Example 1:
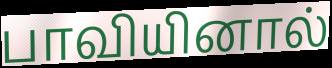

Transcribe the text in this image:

பாவியினால்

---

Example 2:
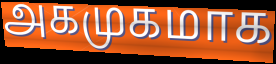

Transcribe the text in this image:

அகமுகமாக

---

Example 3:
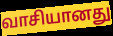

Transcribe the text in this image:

வாசியானது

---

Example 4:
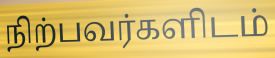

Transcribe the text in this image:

நிற்பவர்களிடம்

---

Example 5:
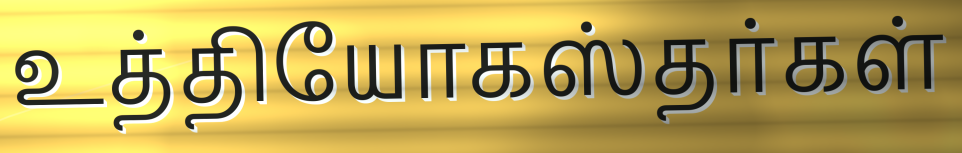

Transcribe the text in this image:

உத்தியோகஸ்தர்கள்